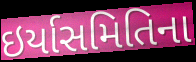
ઇર્યાસમિતિના